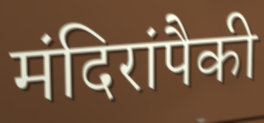
मंदिरांपैकी